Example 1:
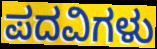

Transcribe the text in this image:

ಪದವಿಗಳು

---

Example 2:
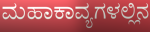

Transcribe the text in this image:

ಮಹಾಕಾವ್ಯಗಳಲ್ಲಿನ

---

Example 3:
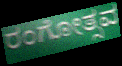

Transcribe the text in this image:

ರಂಗೋತ್ಸವ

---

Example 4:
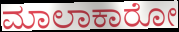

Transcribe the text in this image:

ಮಾಲಾಕಾರೋ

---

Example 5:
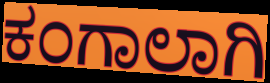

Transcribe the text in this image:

ಕಂಗಾಲಾಗಿ